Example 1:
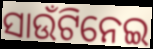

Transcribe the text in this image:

ସାଉଁଟିନେଇ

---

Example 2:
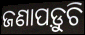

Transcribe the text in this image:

ଜଣାପଡ଼ୁଚି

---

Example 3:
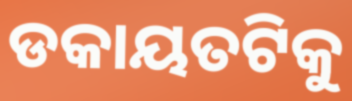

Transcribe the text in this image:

ଡକାୟତଟିକୁ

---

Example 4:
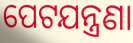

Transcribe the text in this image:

ପେଟଯନ୍ତ୍ରଣା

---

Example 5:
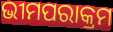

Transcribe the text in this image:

ଭୀମପରାକ୍ରମ